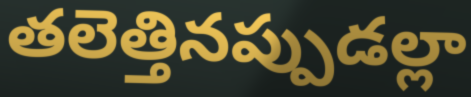
తలెత్తినప్పుడల్లా